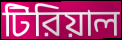
টিরিয়াল